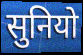
सुनियो